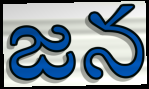
జన